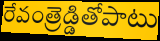
రేవంత్రెడ్డితోపాటు